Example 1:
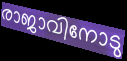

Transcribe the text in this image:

രാജാവിനോടു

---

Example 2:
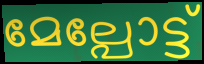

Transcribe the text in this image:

മേല്പോട്ട്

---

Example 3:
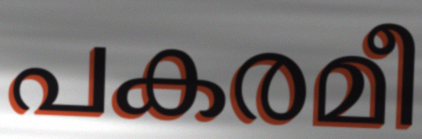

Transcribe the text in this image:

പകരമീ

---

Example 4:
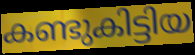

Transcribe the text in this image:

കണ്ടുകിട്ടിയ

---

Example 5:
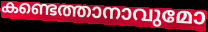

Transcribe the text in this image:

കണ്ടെത്താനാവുമോ